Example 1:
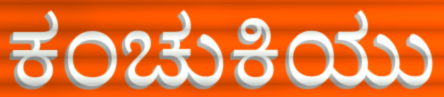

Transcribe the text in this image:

ಕಂಚುಕಿಯು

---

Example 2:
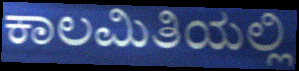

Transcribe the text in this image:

ಕಾಲಮಿತಿಯಲ್ಲಿ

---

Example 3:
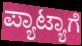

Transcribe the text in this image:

ಪ್ಯಾಟ್ಯಾಗೆ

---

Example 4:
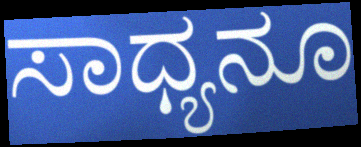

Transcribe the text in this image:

ಸಾಧ್ಯನೂ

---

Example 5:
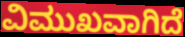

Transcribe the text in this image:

ವಿಮುಖವಾಗಿದೆ